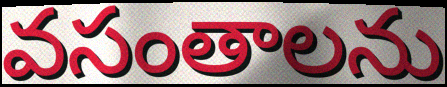
వసంతాలను